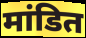
मांडित